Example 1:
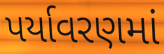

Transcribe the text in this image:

પર્યાવરણમાં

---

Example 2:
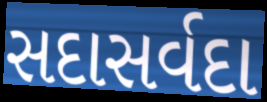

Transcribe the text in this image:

સદાસર્વદા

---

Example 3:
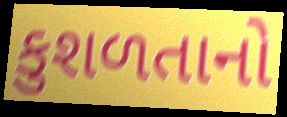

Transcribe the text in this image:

કુશળતાનો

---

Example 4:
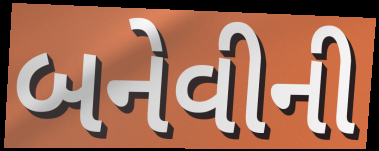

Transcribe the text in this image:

બનેવીની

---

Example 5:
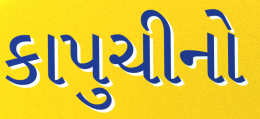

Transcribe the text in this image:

કાપુચીનો